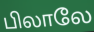
பிலாலே